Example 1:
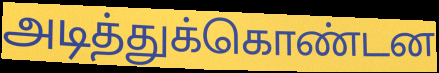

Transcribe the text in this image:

அடித்துக்கொண்டன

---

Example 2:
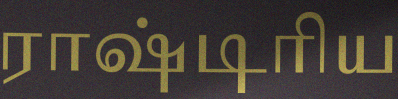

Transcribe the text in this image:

ராஷ்டிரிய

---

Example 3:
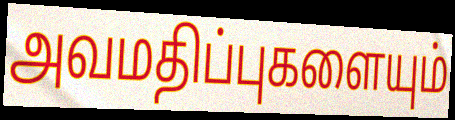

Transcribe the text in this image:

அவமதிப்புகளையும்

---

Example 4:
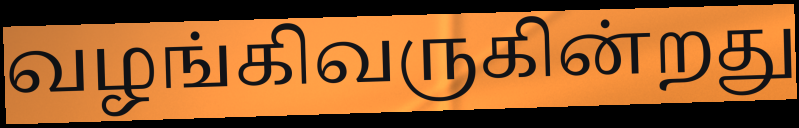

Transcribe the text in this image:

வழங்கிவருகின்றது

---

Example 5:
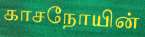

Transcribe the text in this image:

காசநோயின்